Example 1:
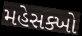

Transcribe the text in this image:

મહેસક્ખો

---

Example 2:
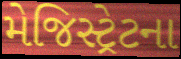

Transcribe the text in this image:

મેજિસ્ટ્રેટના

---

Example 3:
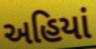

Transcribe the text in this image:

અહિયાં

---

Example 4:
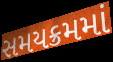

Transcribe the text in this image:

સમયક્રમમાં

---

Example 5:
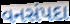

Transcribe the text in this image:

વનસંપદા